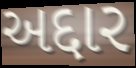
અદ્દાર